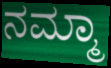
ನಮ್ಮಾ